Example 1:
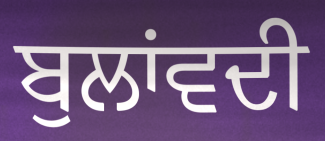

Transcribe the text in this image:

ਬੁਲਾਂਵਦੀ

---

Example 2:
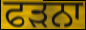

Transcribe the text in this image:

ਫੜਨਾ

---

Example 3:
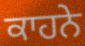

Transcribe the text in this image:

ਕਾਹਨੇ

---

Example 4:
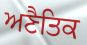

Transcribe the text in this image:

ਅਣੈਤਿਕ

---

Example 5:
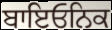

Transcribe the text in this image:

ਬਾਇਓਨਿਕ